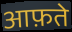
आफ़ते